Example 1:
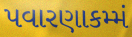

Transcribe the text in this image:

પવારણાકમ્મં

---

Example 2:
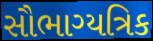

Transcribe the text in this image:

સૌભાગ્યત્રિક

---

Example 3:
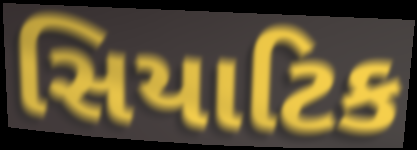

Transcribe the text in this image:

સિયાટિક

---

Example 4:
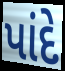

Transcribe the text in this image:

પાંદે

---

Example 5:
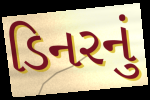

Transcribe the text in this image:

ડિનરનું